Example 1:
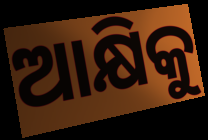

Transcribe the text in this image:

ଆକ୍ଷିକୁ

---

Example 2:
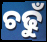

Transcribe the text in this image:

ଚଢୁଁ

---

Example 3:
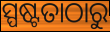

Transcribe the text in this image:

ସ୍ପଷ୍ଟତାଠାରୁ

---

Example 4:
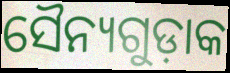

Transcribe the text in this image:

ସୈନ୍ୟଗୁଡ଼ାକ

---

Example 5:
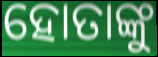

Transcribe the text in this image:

ହୋତାଙ୍କୁ